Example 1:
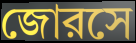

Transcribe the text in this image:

জোরসে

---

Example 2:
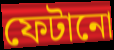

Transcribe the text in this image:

ফেটানো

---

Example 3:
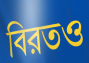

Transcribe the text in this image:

বিরতও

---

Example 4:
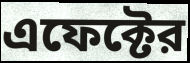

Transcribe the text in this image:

এফেক্টের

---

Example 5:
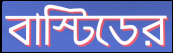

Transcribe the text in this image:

বাস্টিডের